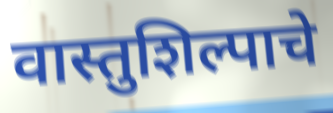
वास्तुशिल्पाचे